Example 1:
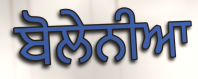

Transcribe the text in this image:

ਬੋਲੇਨੀਆ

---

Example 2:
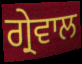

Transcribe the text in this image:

ਗ੍ਰੇਵਾਲ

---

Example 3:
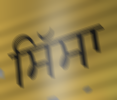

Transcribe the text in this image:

ਸਿੱਸਾ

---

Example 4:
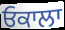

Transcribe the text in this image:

ਓਕਾਲਾ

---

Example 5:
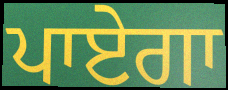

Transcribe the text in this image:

ਪਾਏਗਾ